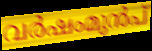
വർഷംമുൻപ്